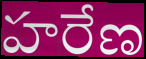
హరేణ